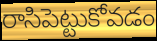
రాసిపెట్టుకోవడం